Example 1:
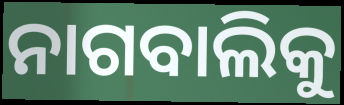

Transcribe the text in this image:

ନାଗବାଲିକୁ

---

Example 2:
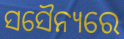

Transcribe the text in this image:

ସସୈନ୍ୟରେ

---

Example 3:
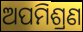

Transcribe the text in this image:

ଅପମିଶ୍ରଣ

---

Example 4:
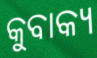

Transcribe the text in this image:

କୁବାକ୍ୟ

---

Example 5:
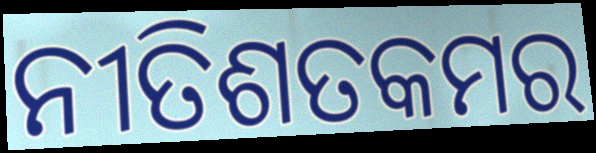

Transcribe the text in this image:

ନୀତିଶତକମର